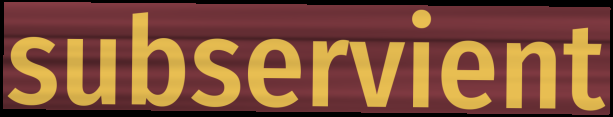
subservient